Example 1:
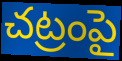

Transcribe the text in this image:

చట్రంపై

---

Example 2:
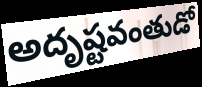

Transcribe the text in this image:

అదృష్టవంతుడో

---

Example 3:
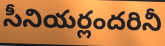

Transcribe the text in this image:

సీనియర్లందరినీ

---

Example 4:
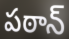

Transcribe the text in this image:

పఠాన్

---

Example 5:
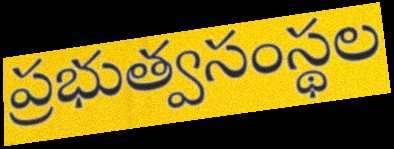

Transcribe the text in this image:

ప్రభుత్వసంస్థల